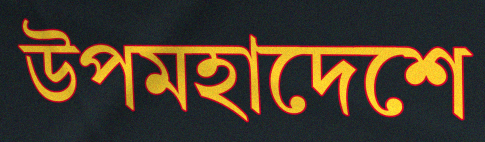
উপমহাদেশে